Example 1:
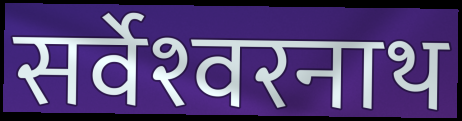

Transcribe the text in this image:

सर्वेश्वरनाथ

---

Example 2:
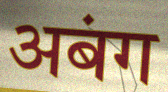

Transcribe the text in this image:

अबंग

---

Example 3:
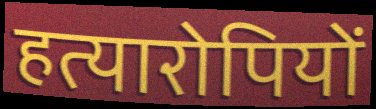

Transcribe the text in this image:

हत्‍यारोपियों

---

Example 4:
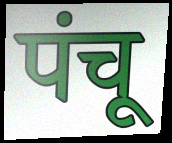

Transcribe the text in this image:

पंचू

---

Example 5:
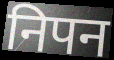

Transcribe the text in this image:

निपन